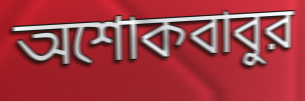
অশোকবাবুর